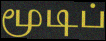
மூடிப்